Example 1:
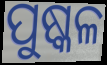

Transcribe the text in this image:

ପୁଷ୍କଳ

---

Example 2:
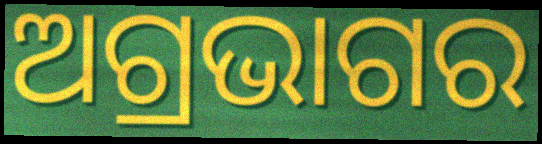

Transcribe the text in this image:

ଅଗ୍ରଭାଗର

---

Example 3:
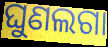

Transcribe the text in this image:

ଘୁଣଲଗା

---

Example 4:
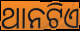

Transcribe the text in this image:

ଥାନଟିଏ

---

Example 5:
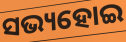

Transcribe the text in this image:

ସଭ୍ୟହୋଇ